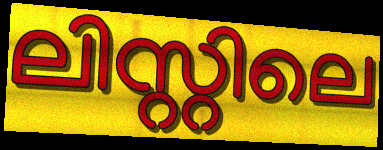
ലിസ്റ്റിലെ